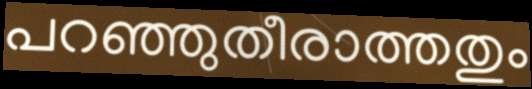
പറഞ്ഞുതീരാത്തതും